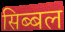
सिब्बल